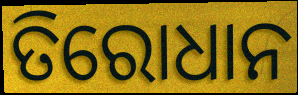
ତିରୋଧାନ